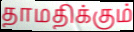
தாமதிக்கும்